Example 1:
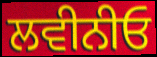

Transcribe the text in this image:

ਲਵੀਨੀਓ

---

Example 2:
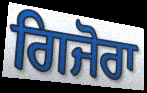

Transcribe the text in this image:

ਗਿਜੋਰਾ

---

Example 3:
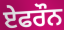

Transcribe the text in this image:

ਏਫਰੌਨ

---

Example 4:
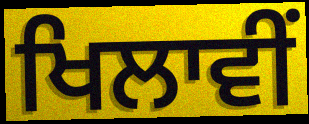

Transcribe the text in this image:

ਖਿਲਾਵੀਂ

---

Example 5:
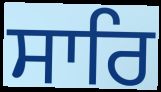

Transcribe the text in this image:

ਸਾਰਿ